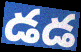
డడ